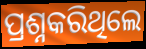
ପ୍ରଶ୍ନକରିଥିଲେ